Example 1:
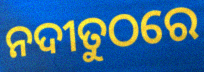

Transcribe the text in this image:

ନଦୀତୁଠରେ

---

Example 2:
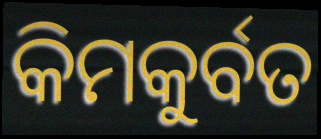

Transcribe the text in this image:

କିମକୁର୍ବତ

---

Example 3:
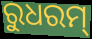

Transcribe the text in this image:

ରୁଧରମ୍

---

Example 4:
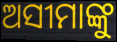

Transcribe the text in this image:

ଅସୀମାଙ୍କୁ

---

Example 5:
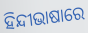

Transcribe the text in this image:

ହିନ୍ଦୀଭାଷାରେ